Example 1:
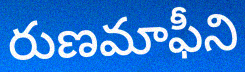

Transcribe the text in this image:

రుణమాఫీని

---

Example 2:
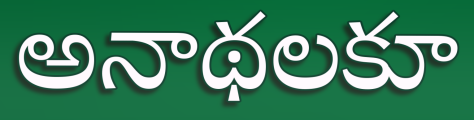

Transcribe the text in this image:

అనాథలకూ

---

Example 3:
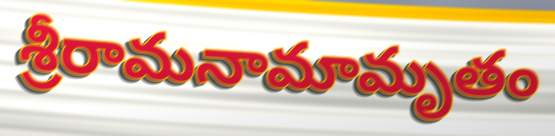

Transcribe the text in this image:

శ్రీరామనామామృతం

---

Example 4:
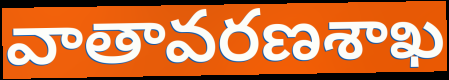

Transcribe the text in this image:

వాతావరణశాఖ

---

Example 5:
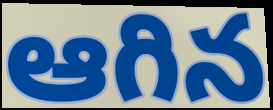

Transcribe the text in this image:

ఆగిన